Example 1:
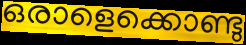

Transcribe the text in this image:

ഒരാളെക്കൊണ്ടു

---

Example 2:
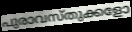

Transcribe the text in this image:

പുരാവസ്തുക്കളോ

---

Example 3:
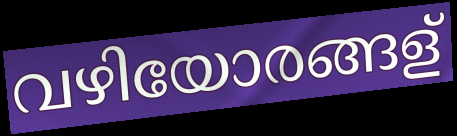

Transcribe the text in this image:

വഴിയോരങ്ങള്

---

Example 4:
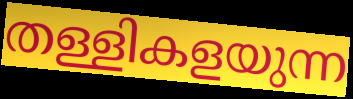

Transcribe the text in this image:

തള്ളികളയുന്ന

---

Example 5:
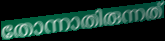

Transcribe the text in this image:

തോന്നാതിരുന്നത്